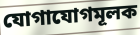
যোগাযোগমূলক